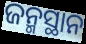
ଜନ୍ମସ୍ଥାନ